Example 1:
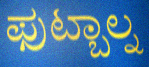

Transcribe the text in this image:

ಫುಟ್ಬಾಲ್ನ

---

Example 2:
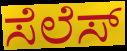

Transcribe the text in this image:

ಸೆಲೆಸ್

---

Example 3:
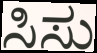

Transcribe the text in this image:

ಸಿಸು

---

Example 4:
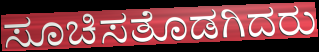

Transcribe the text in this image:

ಸೂಚಿಸತೊಡಗಿದರು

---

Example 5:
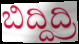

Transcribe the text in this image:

ಬಿದ್ದಿದ್ರಿ